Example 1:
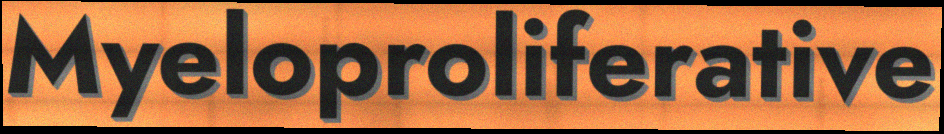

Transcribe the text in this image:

Myeloproliferative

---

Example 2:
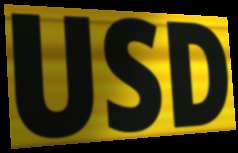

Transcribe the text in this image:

USD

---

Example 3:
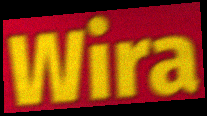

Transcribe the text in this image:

Wira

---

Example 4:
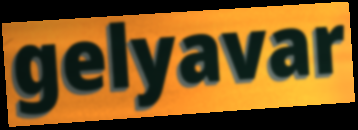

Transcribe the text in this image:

gelyavar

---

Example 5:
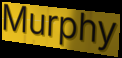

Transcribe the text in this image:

Murphy